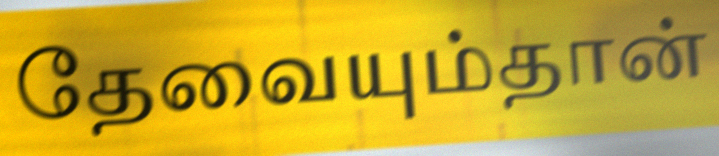
தேவையும்தான்